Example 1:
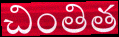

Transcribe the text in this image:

చింతిత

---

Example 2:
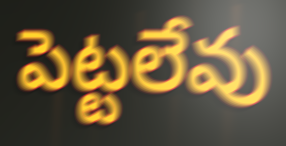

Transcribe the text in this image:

పెట్టలేవు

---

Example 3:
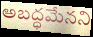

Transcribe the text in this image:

అబద్ధమేనని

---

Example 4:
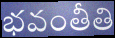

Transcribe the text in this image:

భవంతీతి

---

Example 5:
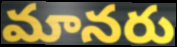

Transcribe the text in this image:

మానరు